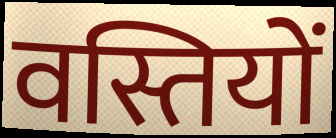
वस्तियों